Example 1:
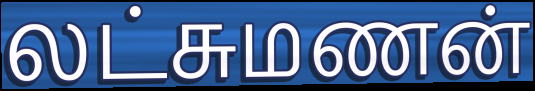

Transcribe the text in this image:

லட்சுமணன்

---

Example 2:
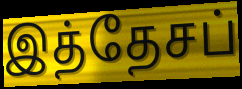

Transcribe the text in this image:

இத்தேசப்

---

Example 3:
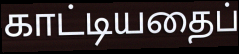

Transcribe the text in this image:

காட்டியதைப்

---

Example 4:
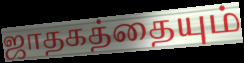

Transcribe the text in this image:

ஜாதகத்தையும்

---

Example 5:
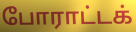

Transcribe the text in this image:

போராட்டக்